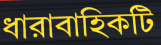
ধারাবাহিকটি